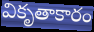
వికృతాకారం